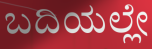
ಬದಿಯಲ್ಲೇ